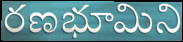
రణభూమిని